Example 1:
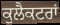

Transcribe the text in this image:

ਕੁਲੈਕਟਰਾਂ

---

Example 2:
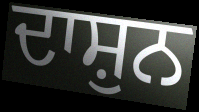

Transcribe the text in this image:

ਦਾਸ਼ੁਨ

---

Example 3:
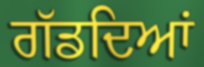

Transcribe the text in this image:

ਗੱਡਦਿਆਂ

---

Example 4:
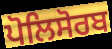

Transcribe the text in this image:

ਪੋਲਿਸੋਰਬ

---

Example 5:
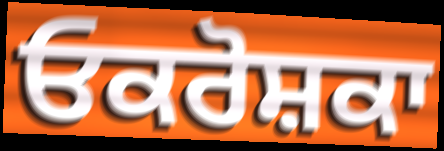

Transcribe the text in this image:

ਓਕਰੋਸ਼ਕਾ